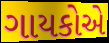
ગાયકોએ